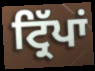
ਟ੍ਰਿੱਪਾਂ